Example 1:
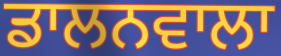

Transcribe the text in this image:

ਡਾਲਨਵਾਲਾ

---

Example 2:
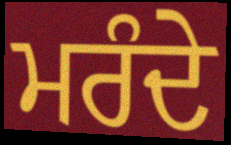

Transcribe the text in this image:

ਮਰੰਦੇ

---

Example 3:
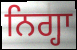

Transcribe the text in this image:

ਨਿਗ੍ਹਾ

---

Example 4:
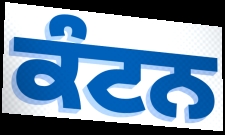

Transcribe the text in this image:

ਕੰਟਨ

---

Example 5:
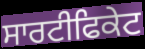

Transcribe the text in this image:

ਸਾਰਟੀਫਿਕੇਟ